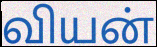
வியன்